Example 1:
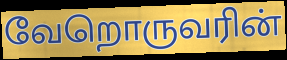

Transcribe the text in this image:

வேறொருவரின்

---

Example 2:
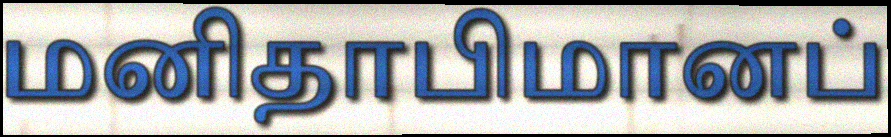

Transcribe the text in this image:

மனிதாபிமானப்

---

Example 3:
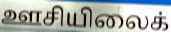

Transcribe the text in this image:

ஊசியிலைக்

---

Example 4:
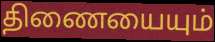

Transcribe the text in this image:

திணையையும்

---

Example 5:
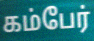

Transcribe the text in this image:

கம்பேர்